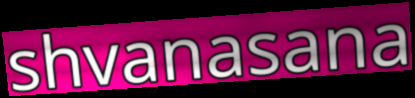
shvanasana